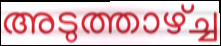
അടുത്താഴ്ച്ച